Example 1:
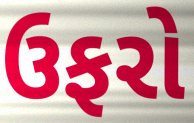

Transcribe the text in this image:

ઉફરો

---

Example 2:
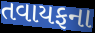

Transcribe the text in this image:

તવાયફના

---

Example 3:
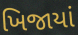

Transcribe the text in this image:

ખિજાયાં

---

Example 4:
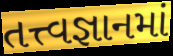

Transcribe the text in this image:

તત્ત્વજ્ઞાનમાં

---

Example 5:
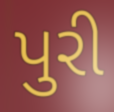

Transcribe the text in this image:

પુરી